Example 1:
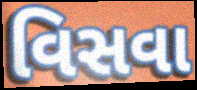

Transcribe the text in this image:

વિસવા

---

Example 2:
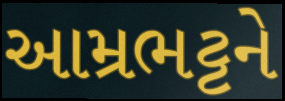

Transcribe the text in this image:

આમ્રભટ્ટને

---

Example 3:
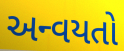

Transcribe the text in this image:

અન્વયતો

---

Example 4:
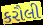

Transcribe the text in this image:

કરૌલી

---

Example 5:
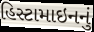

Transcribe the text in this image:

હિસ્ટામાઇનનું